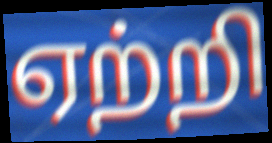
ஏற்றி